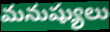
మనుష్యులు